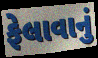
ફેલાવાનું